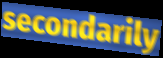
secondarily